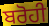
ਬਰੋਹੀ